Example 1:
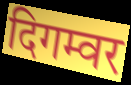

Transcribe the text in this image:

दिगम्वर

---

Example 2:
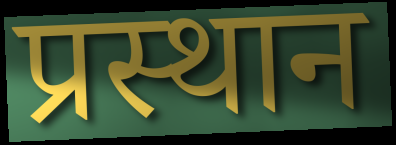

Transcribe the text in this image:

प्रस्थान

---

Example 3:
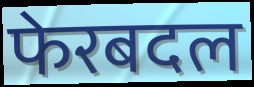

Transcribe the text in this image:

फेरबदल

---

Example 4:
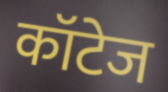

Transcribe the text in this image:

कॉटेज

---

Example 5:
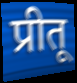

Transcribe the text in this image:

प्रीतू